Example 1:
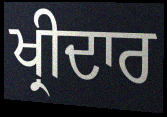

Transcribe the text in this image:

ਖ੍ਰੀਦਾਰ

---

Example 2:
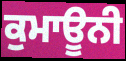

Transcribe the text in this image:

ਕੁਮਾਊਨੀ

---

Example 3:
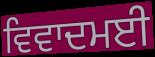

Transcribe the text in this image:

ਵਿਵਾਦਮਈ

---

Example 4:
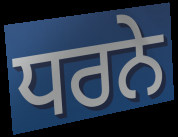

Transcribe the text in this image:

ਧਰਨੇ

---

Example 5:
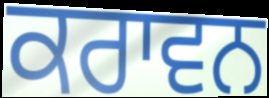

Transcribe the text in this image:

ਕਰਾਵਨ